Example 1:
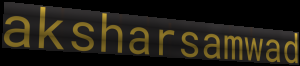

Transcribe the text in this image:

aksharsamwad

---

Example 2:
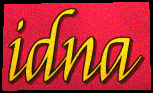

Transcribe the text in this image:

idna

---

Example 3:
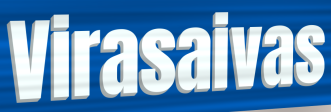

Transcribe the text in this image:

Virasaivas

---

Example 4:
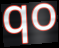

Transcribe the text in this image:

qo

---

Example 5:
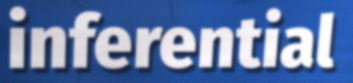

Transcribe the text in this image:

inferential